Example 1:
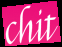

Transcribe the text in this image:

chit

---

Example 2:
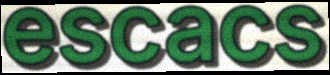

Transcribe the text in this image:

escacs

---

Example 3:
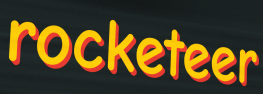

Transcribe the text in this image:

rocketeer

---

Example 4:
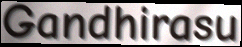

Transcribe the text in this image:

Gandhirasu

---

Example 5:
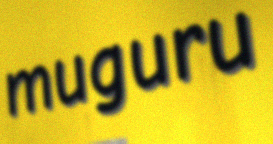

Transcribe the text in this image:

muguru